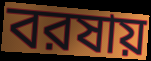
বরষায়